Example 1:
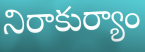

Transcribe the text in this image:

నిరాకుర్యాం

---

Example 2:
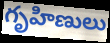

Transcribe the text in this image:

గృహిణులు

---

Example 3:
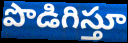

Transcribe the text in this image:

పొడిగిస్తూ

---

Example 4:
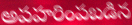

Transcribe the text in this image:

అపహరింపబడిన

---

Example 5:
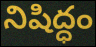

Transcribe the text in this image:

నిషిద్ధం